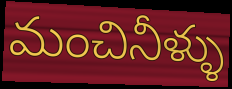
మంచినీళ్ళు